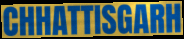
CHHATTISGARH